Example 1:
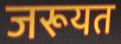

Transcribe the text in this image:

जरूयत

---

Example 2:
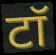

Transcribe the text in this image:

टॉ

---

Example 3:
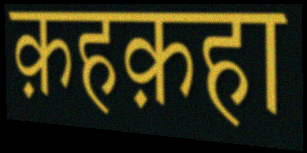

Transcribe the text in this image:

क़हक़हा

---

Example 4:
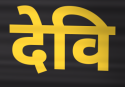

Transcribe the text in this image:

देवि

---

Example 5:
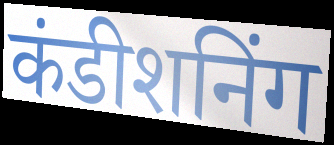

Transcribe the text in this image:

कंडीशनिंग